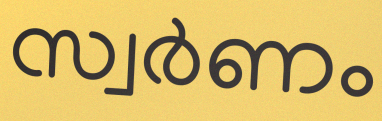
സ്വർണം